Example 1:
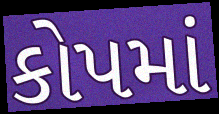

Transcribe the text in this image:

કોપમાં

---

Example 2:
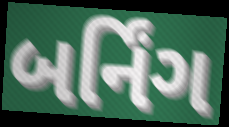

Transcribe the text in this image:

બર્નિંગ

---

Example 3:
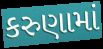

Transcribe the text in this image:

કરુણામાં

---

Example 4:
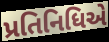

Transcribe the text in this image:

પ્રતિનિધિએ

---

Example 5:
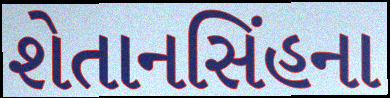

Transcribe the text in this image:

શેતાનસિંહના